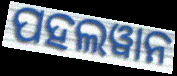
ପହଲୱାନ